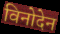
विनोदेन